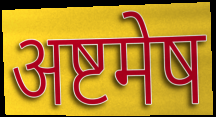
अष्टमेष